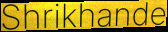
Shrikhande